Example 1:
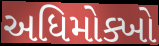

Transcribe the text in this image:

અધિમોક્ખો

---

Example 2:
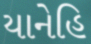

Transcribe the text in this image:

યાનેહિ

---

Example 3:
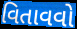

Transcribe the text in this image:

વિતાવવો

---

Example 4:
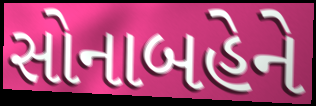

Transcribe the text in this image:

સોનાબહેને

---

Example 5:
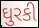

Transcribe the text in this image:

ઘુરકી